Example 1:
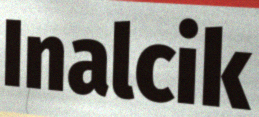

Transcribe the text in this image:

Inalcik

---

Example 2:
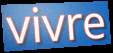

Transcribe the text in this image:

vivre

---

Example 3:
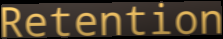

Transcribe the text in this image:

Retention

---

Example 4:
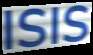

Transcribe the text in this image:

ISIS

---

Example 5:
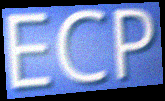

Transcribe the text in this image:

ECP